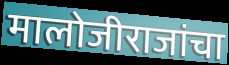
मालोजीराजांचा